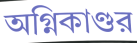
অগ্নিকাণ্ডর